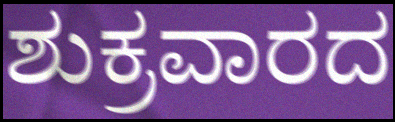
ಶುಕ್ರವಾರದ